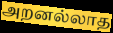
அறனல்லாத